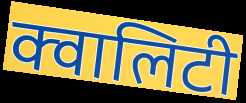
क्‍वालिटी